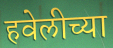
हवेलीच्या